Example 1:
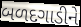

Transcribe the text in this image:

બળદગાડીને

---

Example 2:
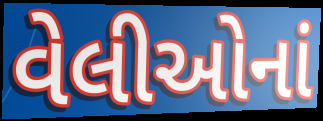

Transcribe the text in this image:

વેલીઓનાં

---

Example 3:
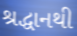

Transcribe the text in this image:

શ્રદ્ધાનથી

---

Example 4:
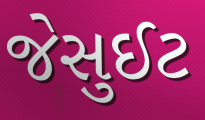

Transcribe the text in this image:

જેસુઈટ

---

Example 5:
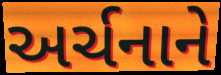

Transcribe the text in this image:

અર્ચનાને